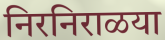
निरनिराळया